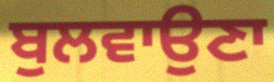
ਬੁਲਵਾਉਣਾ